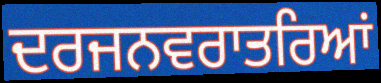
ਦਰਜਨਵਰਾਤਰਿਆਂ